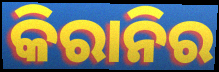
କିରାନିର